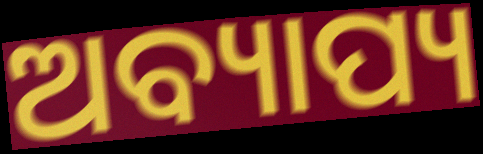
ଅବ୍ୟାପ୍ୟ